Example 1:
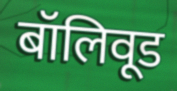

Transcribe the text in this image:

बॉलिवूड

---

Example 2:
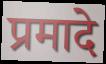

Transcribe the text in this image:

प्रमादे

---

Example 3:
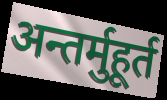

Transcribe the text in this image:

अन्तर्मुहूर्त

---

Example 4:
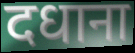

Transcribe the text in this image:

दधाना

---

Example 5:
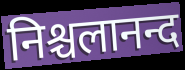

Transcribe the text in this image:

निश्चलानन्द